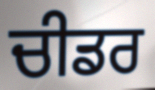
ਚੀਡਰ